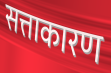
सत्ताकारण